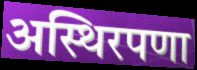
अस्थिरपणा